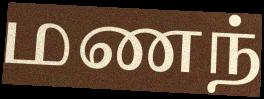
மணந்